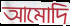
আমোদি